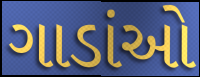
ગાડાંઓ